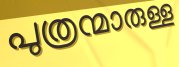
പുത്രന്മാരുള്ള